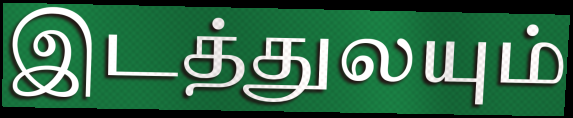
இடத்துலயும்